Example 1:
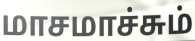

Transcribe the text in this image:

மாசமாச்சும்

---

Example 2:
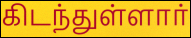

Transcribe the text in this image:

கிடந்துள்ளார்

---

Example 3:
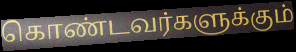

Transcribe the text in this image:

கொண்டவர்களுக்கும்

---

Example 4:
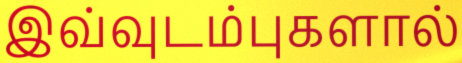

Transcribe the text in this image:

இவ்வுடம்புகளால்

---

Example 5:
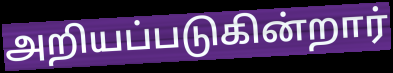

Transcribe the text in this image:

அறியப்படுகின்றார்